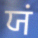
ਯਂ